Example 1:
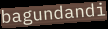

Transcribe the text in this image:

bagundandi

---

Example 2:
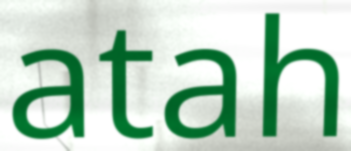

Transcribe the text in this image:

atah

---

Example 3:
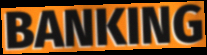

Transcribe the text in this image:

BANKING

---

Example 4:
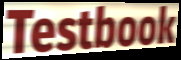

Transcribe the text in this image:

Testbook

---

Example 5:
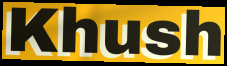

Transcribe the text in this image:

Khush